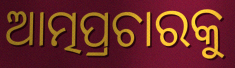
ଆତ୍ମପ୍ରଚାରକୁ